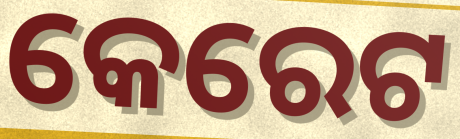
କେରେଟ